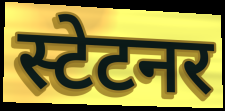
स्टेटनर